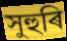
সুহুৰি